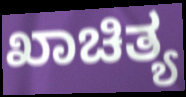
ಖಾಚಿತ್ಯ